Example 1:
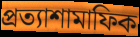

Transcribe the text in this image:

প্রত্যাশামাফিক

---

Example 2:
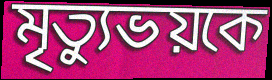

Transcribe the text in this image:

মৃত্যুভয়কে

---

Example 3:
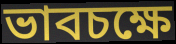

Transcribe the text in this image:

ভাবচক্ষে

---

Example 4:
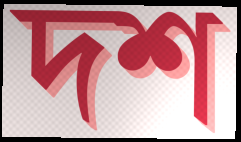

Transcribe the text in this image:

দশ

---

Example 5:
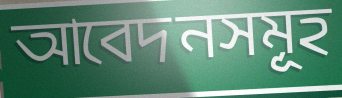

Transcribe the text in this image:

আবেদনসমূহ